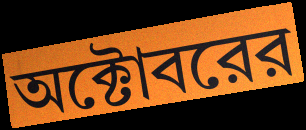
অক্টোবরের